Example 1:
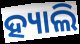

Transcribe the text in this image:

ହ୍ୟାଲି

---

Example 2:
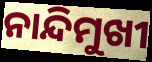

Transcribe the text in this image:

ନାନ୍ଦିମୁଖୀ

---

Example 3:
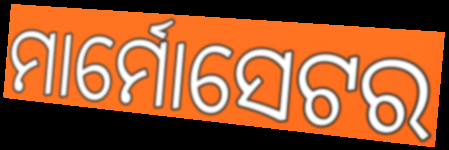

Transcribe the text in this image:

ମାର୍ମୋସେଟର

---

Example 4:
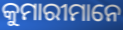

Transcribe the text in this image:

କୁମାରୀମାନେ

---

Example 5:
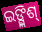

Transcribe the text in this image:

ଇଙ୍ଗ୍ଲିଶ୍